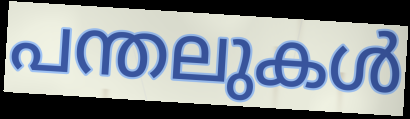
പന്തലുകൾ